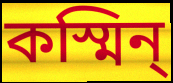
কস্মিন্